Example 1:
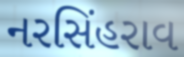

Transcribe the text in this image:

નરસિંહરાવ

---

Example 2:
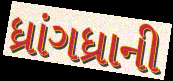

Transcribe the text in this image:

ધ્રાંગધ્રાની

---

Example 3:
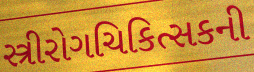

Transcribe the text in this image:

સ્ત્રીરોગચિકિત્સકની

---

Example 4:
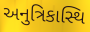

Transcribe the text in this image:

અનુત્રિકાસ્થિ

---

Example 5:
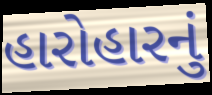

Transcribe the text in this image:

હારોહારનું